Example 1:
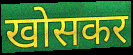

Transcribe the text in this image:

खोसकर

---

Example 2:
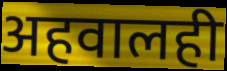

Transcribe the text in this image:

अहवालही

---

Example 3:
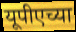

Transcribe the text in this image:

यूपीएच्या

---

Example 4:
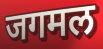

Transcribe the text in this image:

जगमल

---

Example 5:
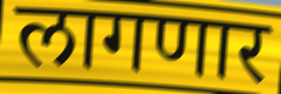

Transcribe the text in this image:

लागणार